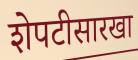
शेपटीसारखा